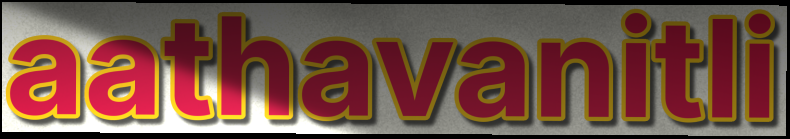
aathavanitli